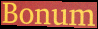
Bonum